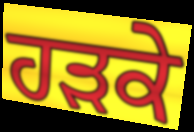
ਹੜਕੇ